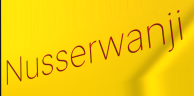
Nusserwanji